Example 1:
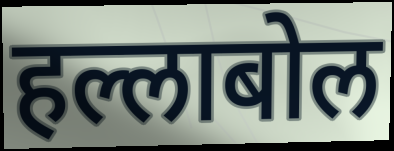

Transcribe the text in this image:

हल्लाबोल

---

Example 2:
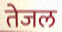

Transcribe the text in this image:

तेजल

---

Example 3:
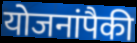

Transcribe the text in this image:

योजनांपैकी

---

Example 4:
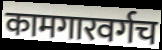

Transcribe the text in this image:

कामगारवर्गच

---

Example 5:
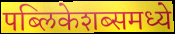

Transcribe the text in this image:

पब्लिकेशब्समध्ये